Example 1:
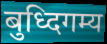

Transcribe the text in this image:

बुध्दिगम्य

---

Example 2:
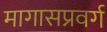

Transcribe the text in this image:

मागासप्रवर्ग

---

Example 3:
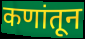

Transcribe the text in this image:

कणांतून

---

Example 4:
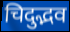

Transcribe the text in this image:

चिदुद्भव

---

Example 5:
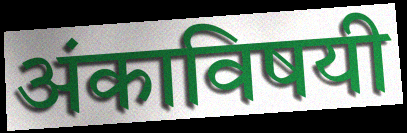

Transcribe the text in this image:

अंकाविषयी